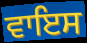
ਵਾਇਸ